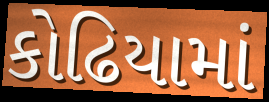
કોઢિયામાં